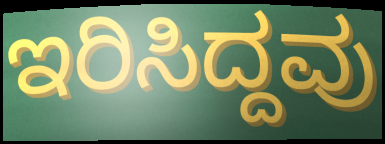
ಇರಿಸಿದ್ದವು